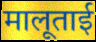
मालूताई